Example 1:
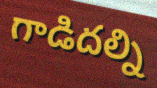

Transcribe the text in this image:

గాడిదల్ని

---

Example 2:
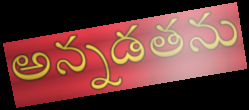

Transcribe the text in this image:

అన్నడతను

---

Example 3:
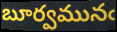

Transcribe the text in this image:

బూర్వమునఁ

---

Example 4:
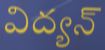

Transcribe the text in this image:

విద్యన్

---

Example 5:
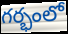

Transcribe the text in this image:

గర్భంలో